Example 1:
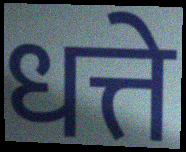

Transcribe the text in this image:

धत्ते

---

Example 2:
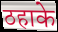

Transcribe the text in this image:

ठहाके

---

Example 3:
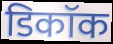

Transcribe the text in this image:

डिकॉक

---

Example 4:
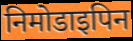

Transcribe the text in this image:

निमोडाइपिन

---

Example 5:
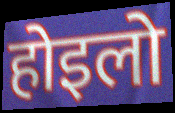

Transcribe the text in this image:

होइलो